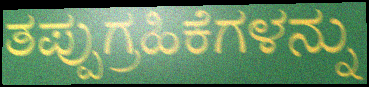
ತಪ್ಪುಗ್ರಹಿಕೆಗಳನ್ನು